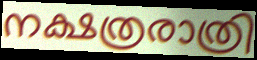
നക്ഷത്രരാത്രി